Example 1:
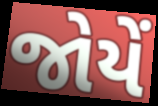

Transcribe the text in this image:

જોયેં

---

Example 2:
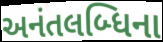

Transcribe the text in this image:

અનંતલબ્ધિના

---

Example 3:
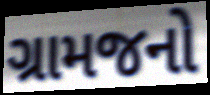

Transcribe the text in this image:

ગ્રામજનો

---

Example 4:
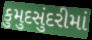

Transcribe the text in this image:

કુમુદસુંદરીમાં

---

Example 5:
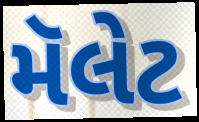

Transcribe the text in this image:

મૅલેટ